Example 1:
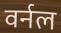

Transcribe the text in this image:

वर्नल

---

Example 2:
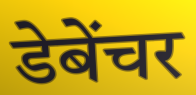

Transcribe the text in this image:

डेबेंचर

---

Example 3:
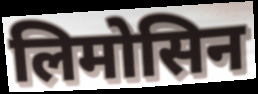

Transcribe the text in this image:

लिमोसिन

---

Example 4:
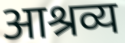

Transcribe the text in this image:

आश्रव्य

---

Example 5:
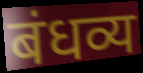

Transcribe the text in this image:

बंधव्य